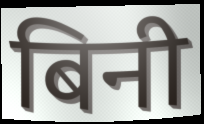
बिनी